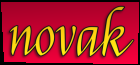
novak